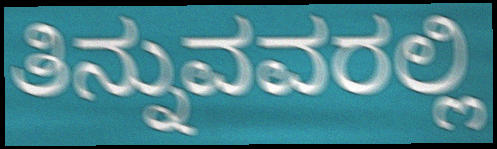
ತಿನ್ನುವವರಲ್ಲಿ